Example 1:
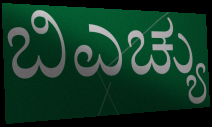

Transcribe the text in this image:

ಬಿಎಚ್ಯು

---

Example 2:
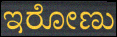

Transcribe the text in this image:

ಇರೋಣು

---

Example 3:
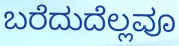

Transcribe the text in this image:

ಬರೆದುದೆಲ್ಲವೂ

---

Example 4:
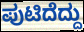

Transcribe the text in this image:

ಪುಟಿದೆದ್ದು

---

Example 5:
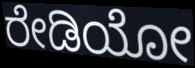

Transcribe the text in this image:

ರೇಡಿಯೋ